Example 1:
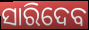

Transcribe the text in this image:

ସାରିଦେବ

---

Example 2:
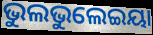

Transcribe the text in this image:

ଭୁଲଭୁଲେଇୟା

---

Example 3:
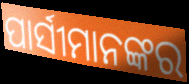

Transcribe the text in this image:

ପାର୍ସୀମାନଙ୍କର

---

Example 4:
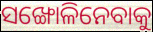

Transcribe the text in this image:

ସଙ୍ଖୋଳିନେବାକୁ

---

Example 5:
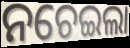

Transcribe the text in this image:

ନଚେଇଲା